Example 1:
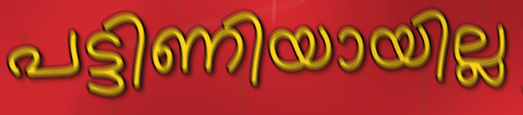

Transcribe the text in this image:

പട്ടിണിയായില്ല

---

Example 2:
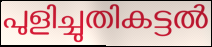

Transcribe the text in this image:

പുളിച്ചുതികട്ടൽ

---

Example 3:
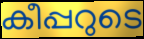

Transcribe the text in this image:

കീപ്പറുടെ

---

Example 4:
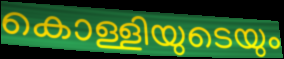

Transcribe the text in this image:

കൊള്ളിയുടെയും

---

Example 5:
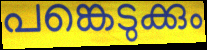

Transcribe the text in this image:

പങ്കെടുക്കും